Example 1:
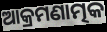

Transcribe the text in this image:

ଆକ୍ରମଣାତ୍ମକ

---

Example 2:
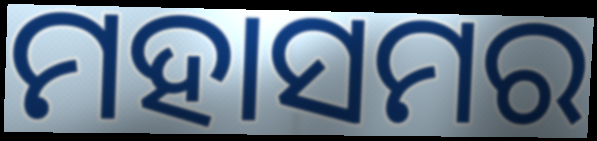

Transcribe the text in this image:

ମହାସମର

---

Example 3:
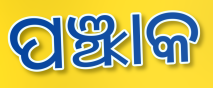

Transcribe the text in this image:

ପଞ୍ଝାକ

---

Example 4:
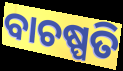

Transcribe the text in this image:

ବାଚଷ୍ପତି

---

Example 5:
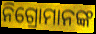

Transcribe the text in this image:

ନିଗ୍ରୋମାନଙ୍କ